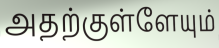
அதற்குள்ளேயும்